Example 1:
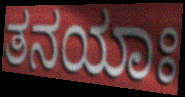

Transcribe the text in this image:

ತನಯಾಃ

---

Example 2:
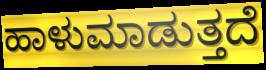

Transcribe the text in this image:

ಹಾಳುಮಾಡುತ್ತದೆ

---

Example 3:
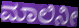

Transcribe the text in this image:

ಮಾಲಿನೀ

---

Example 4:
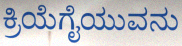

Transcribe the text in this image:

ಕ್ರಿಯೆಗೈಯುವನು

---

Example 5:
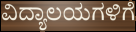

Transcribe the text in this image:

ವಿದ್ಯಾಲಯಗಳಿಗೆ